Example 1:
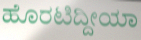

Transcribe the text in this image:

ಹೊರಟಿದ್ದೀಯಾ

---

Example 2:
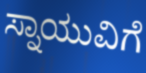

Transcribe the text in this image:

ಸ್ನಾಯುವಿಗೆ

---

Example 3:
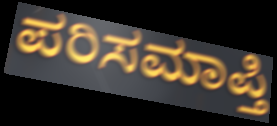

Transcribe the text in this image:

ಪರಿಸಮಾಪ್ತಿ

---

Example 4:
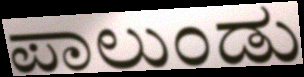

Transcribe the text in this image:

ಪಾಲುಂಡು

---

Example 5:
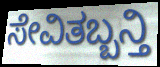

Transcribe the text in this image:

ಸೇವಿತಬ್ಬನ್ತಿ